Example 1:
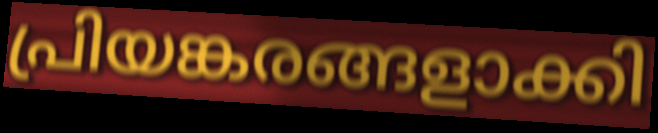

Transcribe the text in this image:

പ്രിയങ്കരങ്ങളാക്കി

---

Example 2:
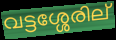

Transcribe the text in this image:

വട്ടശ്ശേരില്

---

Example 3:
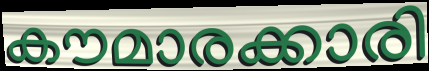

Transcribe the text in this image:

കൗമാരക്കാരി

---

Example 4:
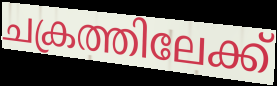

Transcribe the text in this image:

ചക്രത്തിലേക്ക്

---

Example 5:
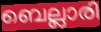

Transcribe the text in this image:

ബെല്ലാരി